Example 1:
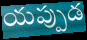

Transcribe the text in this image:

యప్పుడ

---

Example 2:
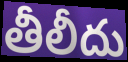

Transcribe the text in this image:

తీలీదు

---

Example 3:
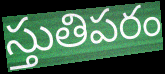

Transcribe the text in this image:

స్తుతిపరం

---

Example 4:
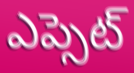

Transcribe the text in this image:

ఎప్సెట్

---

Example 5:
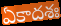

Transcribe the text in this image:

ఏకాదశః